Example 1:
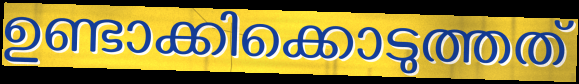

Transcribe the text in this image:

ഉണ്ടാക്കിക്കൊടുത്തത്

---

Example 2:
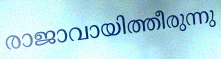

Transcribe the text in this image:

രാജാവായിത്തീരുന്നു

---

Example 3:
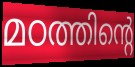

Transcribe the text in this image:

മഠത്തിന്റെ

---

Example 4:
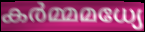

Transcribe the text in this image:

കർമ്മമധ്യേ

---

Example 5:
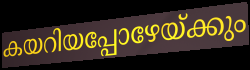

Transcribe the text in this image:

കയറിയപ്പോഴേയ്ക്കും